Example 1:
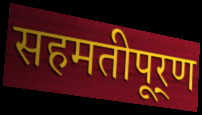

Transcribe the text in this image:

सहमतीपूर्ण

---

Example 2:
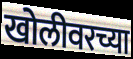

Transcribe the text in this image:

खोलीवरच्या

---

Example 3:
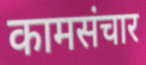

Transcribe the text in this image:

कामसंचार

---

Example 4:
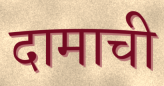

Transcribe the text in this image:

दामाची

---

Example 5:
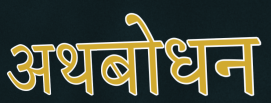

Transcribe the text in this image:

अथबोधन